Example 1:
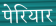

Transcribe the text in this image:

पेरियार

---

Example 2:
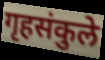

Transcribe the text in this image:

गृहसंकुले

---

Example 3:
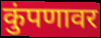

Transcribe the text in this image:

कुंपणावर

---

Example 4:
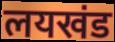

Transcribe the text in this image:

लयखंड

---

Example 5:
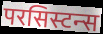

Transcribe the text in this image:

परसिस्टन्स